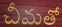
చీమతో